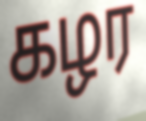
கழர